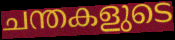
ചന്തകളുടെ